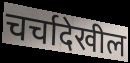
चर्चादेखील